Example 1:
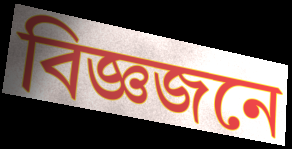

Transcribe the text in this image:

বিজ্ঞজনে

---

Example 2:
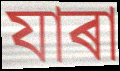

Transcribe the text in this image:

যাৰা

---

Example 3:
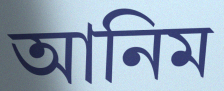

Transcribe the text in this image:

আনিম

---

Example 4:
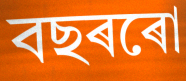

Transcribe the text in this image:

বছৰৰো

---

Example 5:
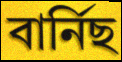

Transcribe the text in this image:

বাৰ্নিছ